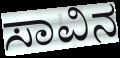
ಸಾವಿನ